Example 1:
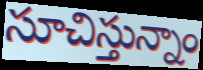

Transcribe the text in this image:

సూచిస్తున్నాం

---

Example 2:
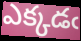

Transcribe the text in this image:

ఎక్కడఁ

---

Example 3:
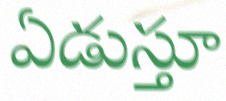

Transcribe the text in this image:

ఏడుస్తూ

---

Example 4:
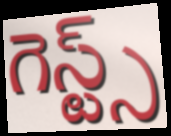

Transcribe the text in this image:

గెస్ట్స్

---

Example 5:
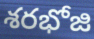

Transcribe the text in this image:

శరభోజి